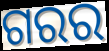
ଗରର